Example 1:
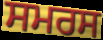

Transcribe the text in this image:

ਸਮਰਸ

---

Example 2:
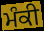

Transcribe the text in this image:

ਮੰਕੀ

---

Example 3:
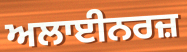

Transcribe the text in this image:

ਅਲਾਈਨਰਜ਼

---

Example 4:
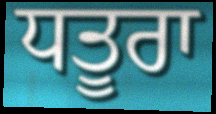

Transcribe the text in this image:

ਧਤੂਰਾ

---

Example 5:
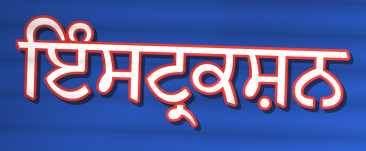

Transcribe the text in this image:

ਇੰਸਟ੍ਰਕਸ਼ਨ